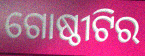
ଗୋଷ୍ଠୀଟିର